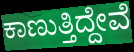
ಕಾಣುತ್ತಿದ್ದೇವೆ